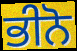
ਭੀਨੋ